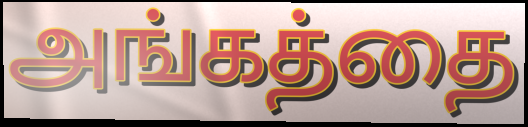
அங்கத்தை